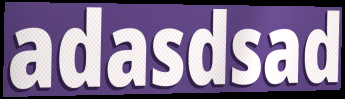
adasdsad